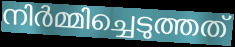
നിർമ്മിച്ചെടുത്തത്